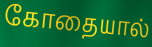
கோதையால்